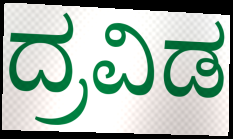
ದ್ರವಿಡ